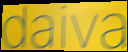
daiva